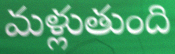
మళ్లుతుంది